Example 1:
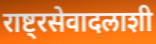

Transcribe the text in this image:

राष्ट्रसेवादलाशी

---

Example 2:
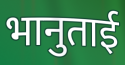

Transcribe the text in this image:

भानुताई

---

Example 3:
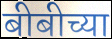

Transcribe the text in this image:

बीबीच्या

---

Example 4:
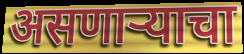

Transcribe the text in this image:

असणाऱ्याचा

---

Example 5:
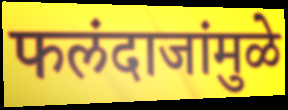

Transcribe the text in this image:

फलंदाजांमुळे